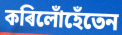
কৰিলোঁহেঁতেন